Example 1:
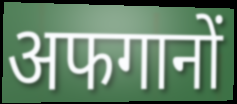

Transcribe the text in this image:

अफगानों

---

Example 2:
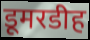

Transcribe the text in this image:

डूमरडीह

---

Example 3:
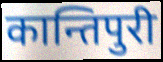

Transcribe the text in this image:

कान्तिपुरी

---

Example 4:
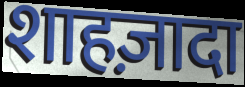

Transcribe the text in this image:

शाहज़ादा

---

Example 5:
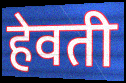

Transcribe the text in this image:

हेवती